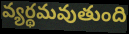
వ్యర్థమవుతుంది